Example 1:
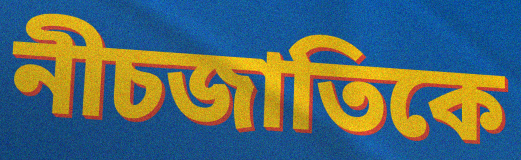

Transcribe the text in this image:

নীচজাতিকে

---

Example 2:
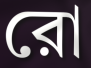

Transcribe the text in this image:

রো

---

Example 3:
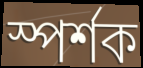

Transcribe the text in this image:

স্পর্শক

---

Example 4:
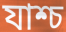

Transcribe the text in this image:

যাশ্চ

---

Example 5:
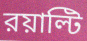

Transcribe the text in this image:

রয়াল্টি